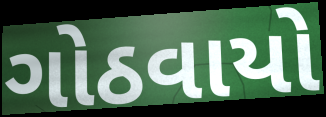
ગોઠવાયો